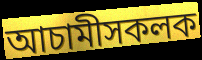
আচামীসকলক